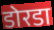
डोरडा